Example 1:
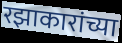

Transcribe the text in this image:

रझाकारांच्या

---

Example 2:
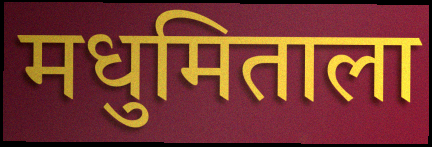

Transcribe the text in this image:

मधुमिताला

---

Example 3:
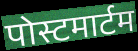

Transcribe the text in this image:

पोस्टमार्टम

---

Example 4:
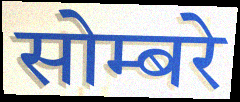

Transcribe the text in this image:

सोम्बरे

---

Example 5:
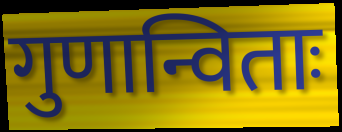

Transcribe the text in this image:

गुणान्विताः